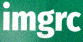
imgrc